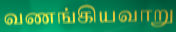
வணங்கியவாறு